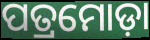
ପତ୍ରମୋଡ଼ା